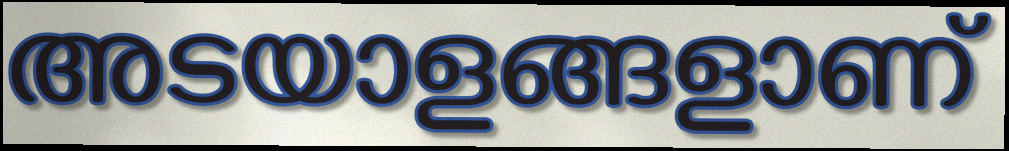
അടയാളങ്ങളാണ്